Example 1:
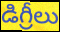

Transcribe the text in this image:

డిగ్రీలు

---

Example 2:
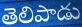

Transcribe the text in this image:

తెలిపాడు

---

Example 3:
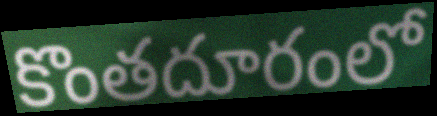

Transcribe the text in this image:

కొంతదూరంలో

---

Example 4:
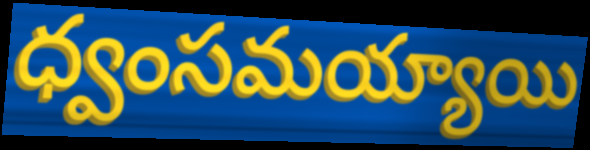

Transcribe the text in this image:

ధ్వంసమయ్యాయి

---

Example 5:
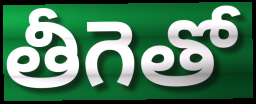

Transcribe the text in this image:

తీగెతో